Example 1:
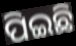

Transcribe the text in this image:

ପିଇଛି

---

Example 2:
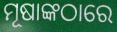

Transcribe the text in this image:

ମୂଷାଙ୍କଠାରେ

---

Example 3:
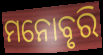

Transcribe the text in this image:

ମନୋବୃରି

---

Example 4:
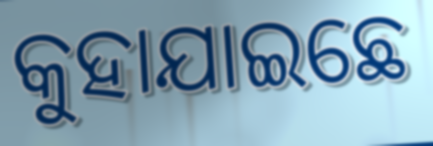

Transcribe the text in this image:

କୁହାଯାଇଛେ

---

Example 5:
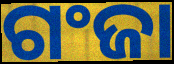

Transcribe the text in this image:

ଗଂଜା